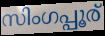
സിംഗപ്പൂര്